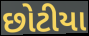
છોટીયા